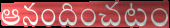
ఆనందించటం